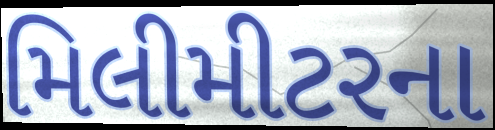
મિલીમીટરના